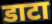
डाटा